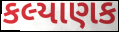
કલ્યાણક